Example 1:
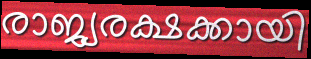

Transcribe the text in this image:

രാജ്യരക്ഷക്കായി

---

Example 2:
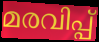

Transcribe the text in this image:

മരവിപ്പ്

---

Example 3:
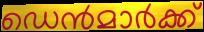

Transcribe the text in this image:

ഡെൻമാർക്ക്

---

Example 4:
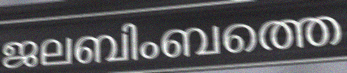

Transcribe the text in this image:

ജലബിംബത്തെ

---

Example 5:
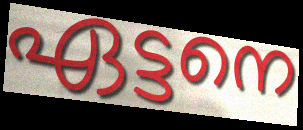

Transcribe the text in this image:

ഏട്ടനെ